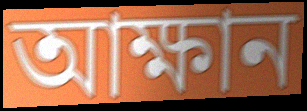
আক্ষান